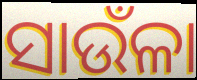
ସାଉଁଳା